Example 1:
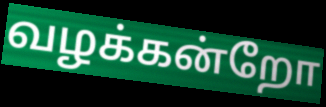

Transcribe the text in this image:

வழக்கன்றோ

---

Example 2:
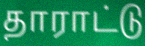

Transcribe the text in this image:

தாராட்டு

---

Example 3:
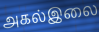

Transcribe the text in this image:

அகல்இலை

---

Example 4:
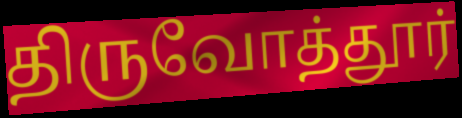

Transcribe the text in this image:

திருவோத்தூர்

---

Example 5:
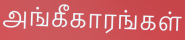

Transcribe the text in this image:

அங்கீகாரங்கள்